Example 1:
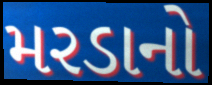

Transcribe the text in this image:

મરડાનો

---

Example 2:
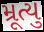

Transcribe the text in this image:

મ્રૂત્યુ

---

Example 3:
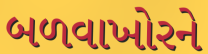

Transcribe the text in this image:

બળવાખોરને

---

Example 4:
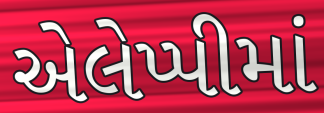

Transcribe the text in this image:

એલેપ્પીમાં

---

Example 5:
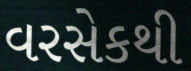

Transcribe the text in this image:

વરસેકથી